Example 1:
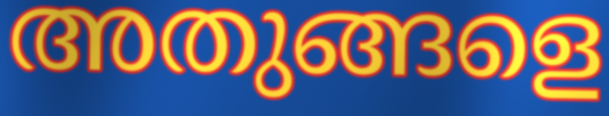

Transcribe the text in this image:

അതുങ്ങളെ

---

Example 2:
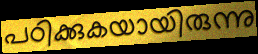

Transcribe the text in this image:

പഠിക്കുകയായിരുന്നു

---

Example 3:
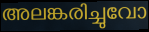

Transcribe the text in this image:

അലങ്കരിച്ചുവോ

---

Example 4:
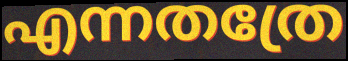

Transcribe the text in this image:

എന്നതത്രേ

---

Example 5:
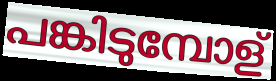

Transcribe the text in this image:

പങ്കിടുമ്പോള്